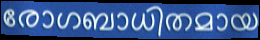
രോഗബാധിതമായ